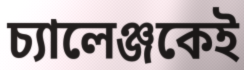
চ্যালেঞ্জকেই